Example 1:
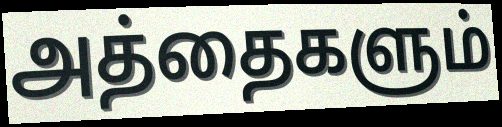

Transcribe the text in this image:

அத்தைகளும்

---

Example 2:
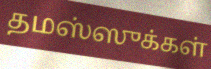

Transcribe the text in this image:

தமஸ்ஸுக்கள்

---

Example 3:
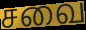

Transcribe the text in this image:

சவை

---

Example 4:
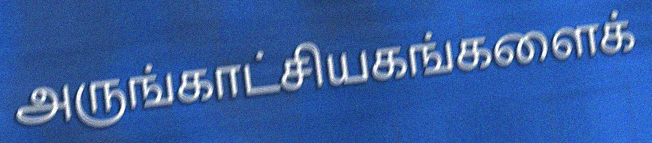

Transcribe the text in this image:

அருங்காட்சியகங்களைக்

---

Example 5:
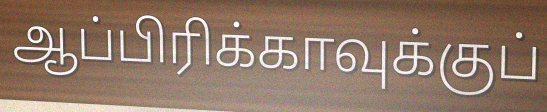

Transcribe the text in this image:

ஆப்பிரிக்காவுக்குப்